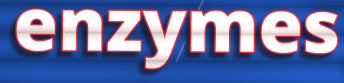
enzymes